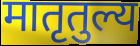
मातृतुल्य